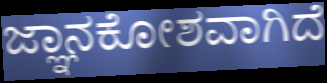
ಜ್ಞಾನಕೋಶವಾಗಿದೆ